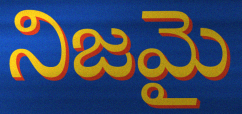
నిజమై